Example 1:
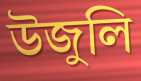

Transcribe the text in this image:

উজুলি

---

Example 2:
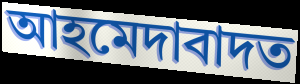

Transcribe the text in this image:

আহমেদাবাদত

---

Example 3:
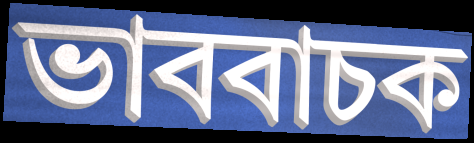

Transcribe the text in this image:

ভাববাচক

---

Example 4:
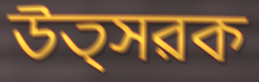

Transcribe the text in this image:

উত্সৱক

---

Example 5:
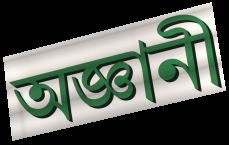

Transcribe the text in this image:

অজ্ঞানী